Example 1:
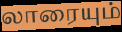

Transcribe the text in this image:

லாரையும்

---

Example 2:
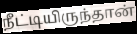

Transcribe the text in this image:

நீட்டியிருந்தான்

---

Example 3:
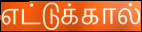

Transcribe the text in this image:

எட்டுக்கால்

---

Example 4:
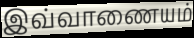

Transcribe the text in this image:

இவ்வாணையம்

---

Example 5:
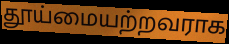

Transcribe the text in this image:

தூய்மையற்றவராக